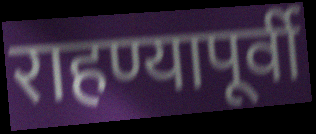
राहण्यापूर्वी